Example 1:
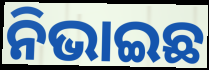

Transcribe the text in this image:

ନିଭାଇଛ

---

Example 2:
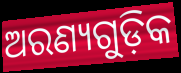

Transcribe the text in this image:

ଅରଣ୍ୟଗୁଡ଼ିକ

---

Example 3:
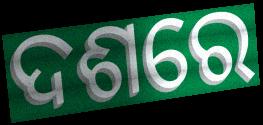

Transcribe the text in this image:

ଦଶରେ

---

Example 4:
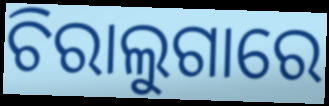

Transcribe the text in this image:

ଚିରାଲୁଗାରେ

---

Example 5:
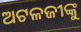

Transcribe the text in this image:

ଅଟଳଜୀଙ୍କୁ